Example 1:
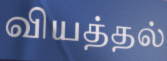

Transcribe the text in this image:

வியத்தல்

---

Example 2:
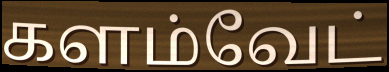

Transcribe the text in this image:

களம்வேட்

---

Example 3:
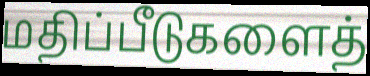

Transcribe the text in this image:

மதிப்பீடுகளைத்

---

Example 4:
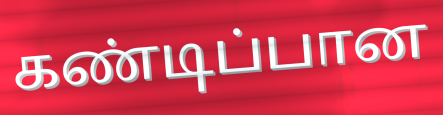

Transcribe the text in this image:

கண்டிப்பான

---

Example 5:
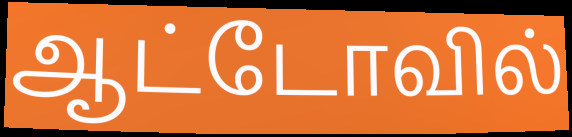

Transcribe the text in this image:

ஆட்டோவில்